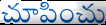
చూపించు